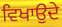
ਵਿਖਾਉਦੇ